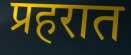
प्रहरात